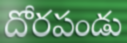
దోరపండు